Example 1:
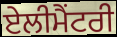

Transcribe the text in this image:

ਏਲੀਮੈਂਟਰੀ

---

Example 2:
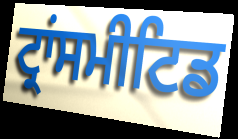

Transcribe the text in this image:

ਟ੍ਰਾਂਸਮੀਟਿਡ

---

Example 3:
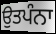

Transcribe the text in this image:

ਉਤਪੰਨਾ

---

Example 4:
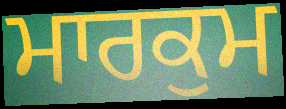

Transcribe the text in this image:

ਮਾਰਕੁਮ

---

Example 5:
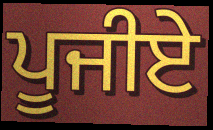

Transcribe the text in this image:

ਪੂਜੀਏ